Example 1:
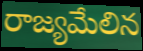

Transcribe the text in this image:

రాజ్యమేలిన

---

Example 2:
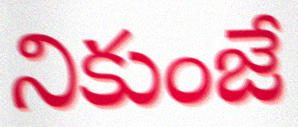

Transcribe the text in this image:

నికుంజే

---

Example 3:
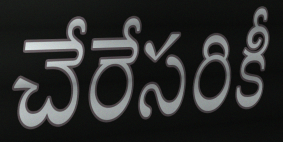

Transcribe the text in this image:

చేరేసరికీ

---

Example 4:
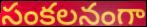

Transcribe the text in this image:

సంకలనంగా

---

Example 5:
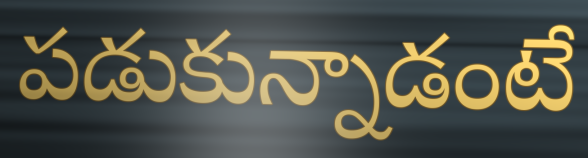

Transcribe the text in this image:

పడుకున్నాడంటే